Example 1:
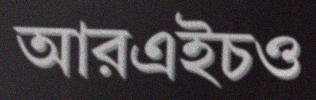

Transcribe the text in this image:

আরএইচও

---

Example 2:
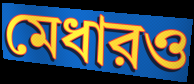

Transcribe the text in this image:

মেধারও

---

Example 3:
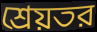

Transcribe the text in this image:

শ্রেয়তর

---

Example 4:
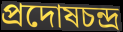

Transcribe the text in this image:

প্রদোষচন্দ্র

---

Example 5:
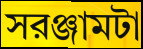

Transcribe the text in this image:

সরঞ্জামটা